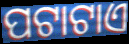
ପଟାଟାଏ